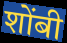
शोंबी